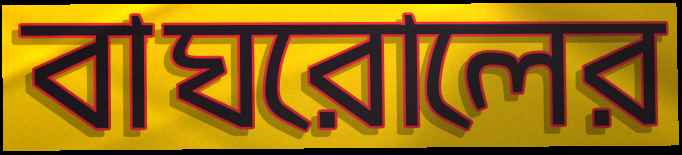
বাঘরোলের